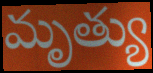
మృత్యు